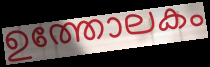
ഉത്തോലകം